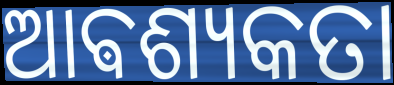
ଆଵଶ୍ୟକତା